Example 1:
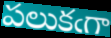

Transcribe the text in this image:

పలుకఁగా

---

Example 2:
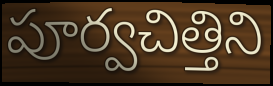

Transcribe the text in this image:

పూర్వచిత్తిని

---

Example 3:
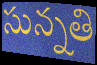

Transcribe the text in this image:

సున్నతి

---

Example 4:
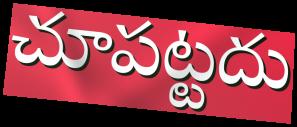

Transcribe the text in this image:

చూపట్టదు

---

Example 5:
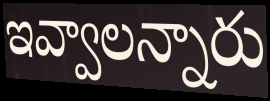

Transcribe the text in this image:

ఇవ్వాలన్నారు